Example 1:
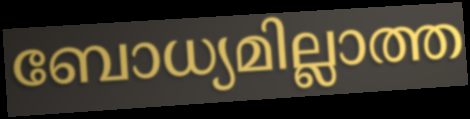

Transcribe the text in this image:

ബോധ്യമില്ലാത്ത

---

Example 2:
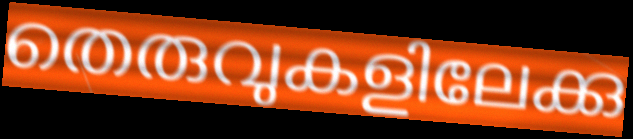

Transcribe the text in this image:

തെരുവുകളിലേക്കു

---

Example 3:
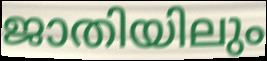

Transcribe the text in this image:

ജാതിയിലും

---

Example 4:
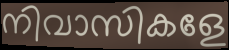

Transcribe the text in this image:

നിവാസികളേ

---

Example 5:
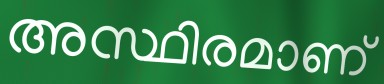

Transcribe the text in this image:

അസ്ഥിരമാണ്